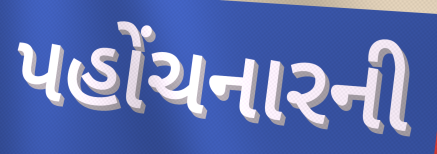
પહોંચનારની